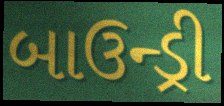
બાઉન્ડ્રી